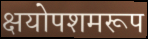
क्षयोपशमरूप